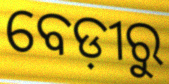
ବେଡ଼ୀରୁ